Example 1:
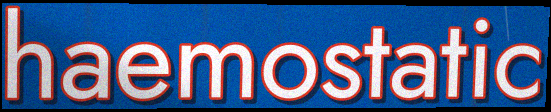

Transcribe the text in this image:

haemostatic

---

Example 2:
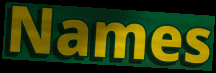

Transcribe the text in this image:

Names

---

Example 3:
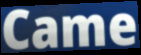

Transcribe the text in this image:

Came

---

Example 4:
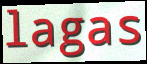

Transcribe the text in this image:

lagas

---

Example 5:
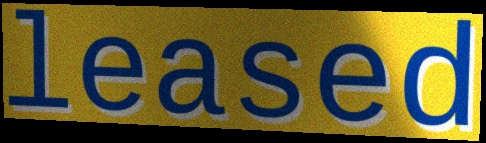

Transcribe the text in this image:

leased